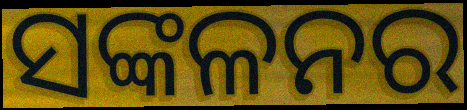
ସଙ୍କଳନର